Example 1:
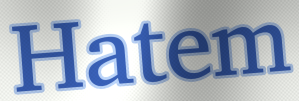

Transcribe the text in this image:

Hatem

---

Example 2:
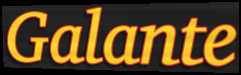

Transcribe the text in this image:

Galante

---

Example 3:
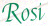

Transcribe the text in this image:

Rosi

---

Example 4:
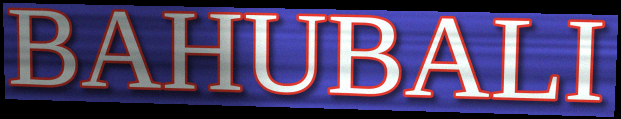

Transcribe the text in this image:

BAHUBALI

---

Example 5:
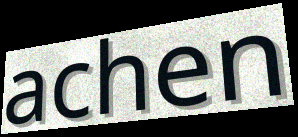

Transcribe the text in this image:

achen